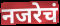
नजरेचं